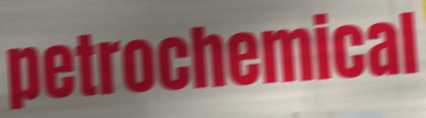
petrochemical